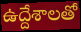
ఉద్దేశాలతో